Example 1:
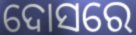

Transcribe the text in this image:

ଦୋସରେ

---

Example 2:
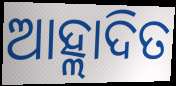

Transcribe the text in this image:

ଆହ୍ଲାଦିତ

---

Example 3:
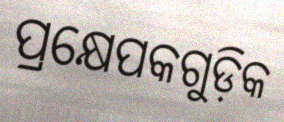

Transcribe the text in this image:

ପ୍ରକ୍ଷେପକଗୁଡ଼ିକ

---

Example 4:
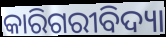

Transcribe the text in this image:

କାରିଗରୀବିଦ୍ୟା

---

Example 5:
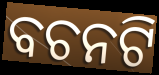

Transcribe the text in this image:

ବଚନଟି